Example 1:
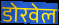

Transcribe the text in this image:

डोरवेल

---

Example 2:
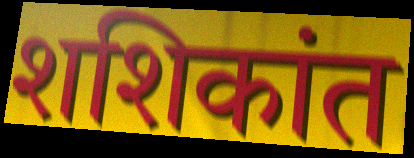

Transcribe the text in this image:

शशिकांत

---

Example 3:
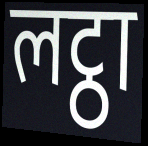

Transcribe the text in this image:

लट्ठा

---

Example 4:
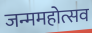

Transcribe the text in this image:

जन्ममहोत्सव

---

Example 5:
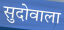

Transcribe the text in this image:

सुदोवाला